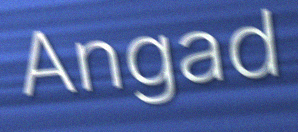
Angad